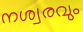
നശ്വരവും